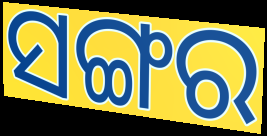
ସଙ୍ଗର